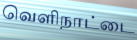
வெளிநாட்டை